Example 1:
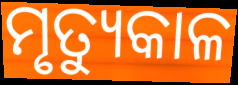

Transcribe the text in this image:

ମୃତ୍ୟୁକାଳ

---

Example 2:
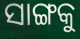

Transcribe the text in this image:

ସାଙ୍ଗକୁ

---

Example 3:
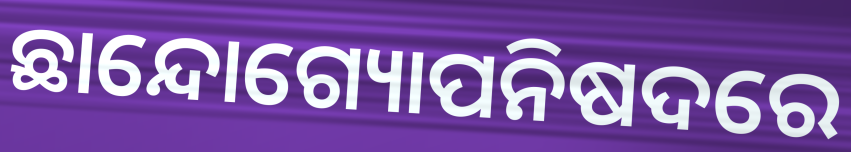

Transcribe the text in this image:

ଛାନ୍ଦୋଗ୍ୟୋପନିଷଦରେ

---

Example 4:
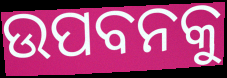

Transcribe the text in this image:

ଉପବନକୁ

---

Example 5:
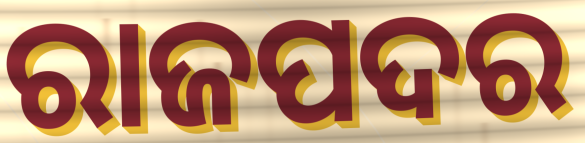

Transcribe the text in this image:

ରାଜପଦର